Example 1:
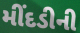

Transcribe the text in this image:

મીંદડીની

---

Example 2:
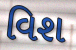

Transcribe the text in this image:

વિશ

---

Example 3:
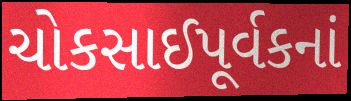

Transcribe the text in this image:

ચોકસાઈપૂર્વકનાં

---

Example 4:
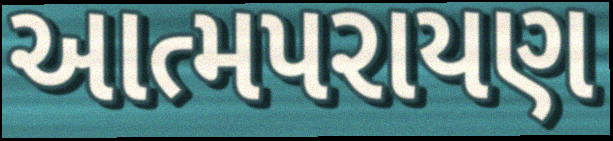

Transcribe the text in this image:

આત્મપરાયણ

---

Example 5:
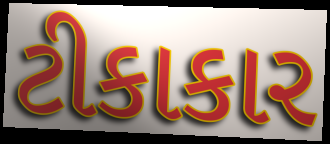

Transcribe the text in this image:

ટીકાકાર